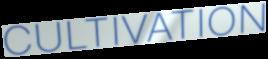
CULTIVATION